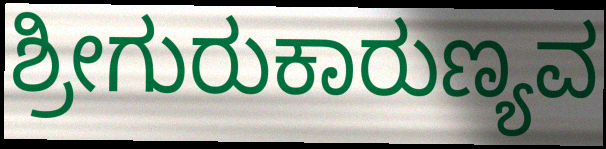
ಶ್ರೀಗುರುಕಾರುಣ್ಯವ